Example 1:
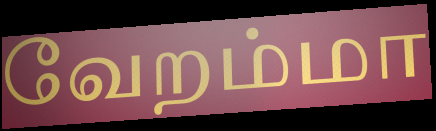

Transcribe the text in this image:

வேறம்மா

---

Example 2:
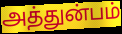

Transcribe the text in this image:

அத்துன்பம்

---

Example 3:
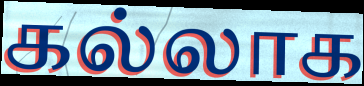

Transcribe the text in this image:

கல்லாக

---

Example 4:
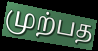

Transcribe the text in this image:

முற்பத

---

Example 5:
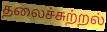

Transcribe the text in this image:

தலைச்சுற்றல்